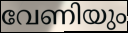
വേണിയും